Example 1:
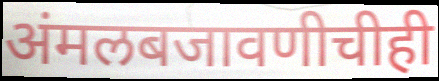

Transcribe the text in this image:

अंमलबजावणीचीही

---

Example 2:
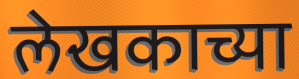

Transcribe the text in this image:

लेखकाच्या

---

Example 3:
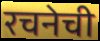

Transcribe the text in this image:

रचनेची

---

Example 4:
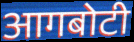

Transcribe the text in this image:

आगबोटी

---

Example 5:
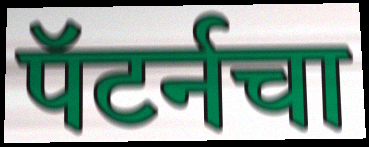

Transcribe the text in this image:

पॅटर्नचा